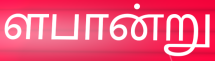
ளபான்று